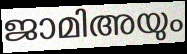
ജാമിഅയും